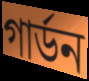
গার্ডন